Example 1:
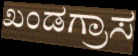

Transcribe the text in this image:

ಖಂಡಗ್ರಾಸ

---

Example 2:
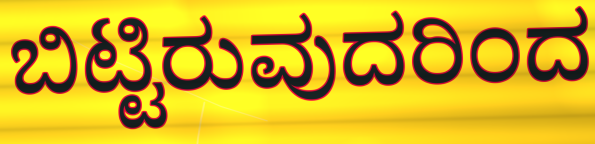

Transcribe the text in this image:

ಬಿಟ್ಟಿರುವುದರಿಂದ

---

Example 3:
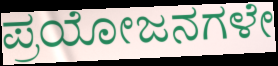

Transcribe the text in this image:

ಪ್ರಯೋಜನಗಳೇ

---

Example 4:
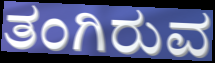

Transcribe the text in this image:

ತಂಗಿರುವ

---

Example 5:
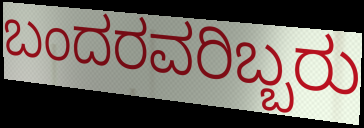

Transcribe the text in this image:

ಬಂದರವರಿಬ್ಬರು